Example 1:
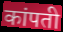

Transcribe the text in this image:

कांपती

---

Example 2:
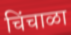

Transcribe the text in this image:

चिंचाळा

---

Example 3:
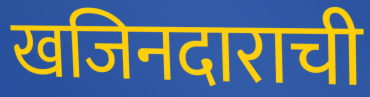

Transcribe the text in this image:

खजिनदाराची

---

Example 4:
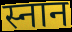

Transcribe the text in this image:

स्नान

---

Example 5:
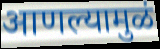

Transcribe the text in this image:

आणल्यामुळं